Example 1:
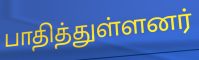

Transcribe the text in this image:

பாதித்துள்ளனர்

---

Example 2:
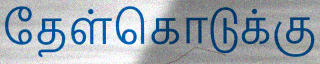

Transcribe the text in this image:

தேள்கொடுக்கு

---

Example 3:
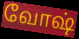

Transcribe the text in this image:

வோஷ்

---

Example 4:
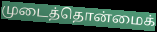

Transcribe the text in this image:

முடைத்தொன்மைக்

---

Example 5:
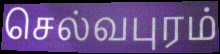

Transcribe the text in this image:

செல்வபுரம்